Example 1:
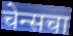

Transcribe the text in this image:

चेन्सचा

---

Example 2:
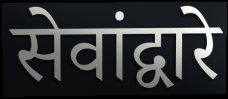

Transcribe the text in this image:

सेवांद्वारे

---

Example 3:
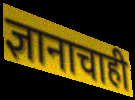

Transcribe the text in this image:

ज्ञानाचाही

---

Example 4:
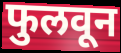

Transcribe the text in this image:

फुलवून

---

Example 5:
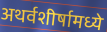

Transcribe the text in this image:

अथर्वशीर्षामध्ये